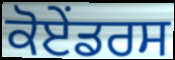
ਕੋਏਂਡਰਸ